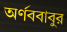
অর্ণববাবুর